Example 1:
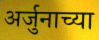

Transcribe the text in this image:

अर्जुनाच्या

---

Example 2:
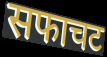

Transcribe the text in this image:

सफाचट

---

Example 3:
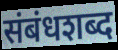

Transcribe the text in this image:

संबंधशब्द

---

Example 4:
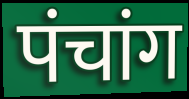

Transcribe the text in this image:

पंचांग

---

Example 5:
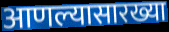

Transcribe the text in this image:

आणल्यासारख्या